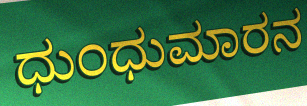
ಧುಂಧುಮಾರನ